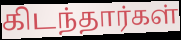
கிடந்தார்கள்